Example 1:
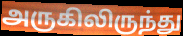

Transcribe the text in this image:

அருகிலிருந்து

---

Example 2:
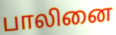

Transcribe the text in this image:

பாலினை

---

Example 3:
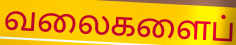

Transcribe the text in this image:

வலைகளைப்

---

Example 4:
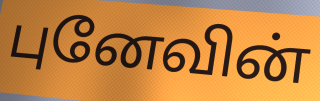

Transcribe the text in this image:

புனேவின்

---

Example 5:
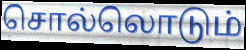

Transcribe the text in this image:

சொல்லொடும்